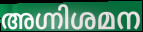
അഗ്നിശമന